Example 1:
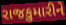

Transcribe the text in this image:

રાજકુમારીને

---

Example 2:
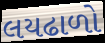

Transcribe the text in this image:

લયઢાળો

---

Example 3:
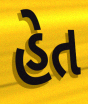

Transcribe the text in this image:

હેત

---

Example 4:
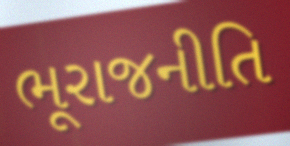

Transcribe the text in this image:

ભૂરાજનીતિ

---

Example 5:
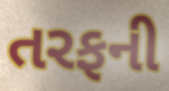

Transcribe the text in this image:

તરફની